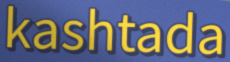
kashtada